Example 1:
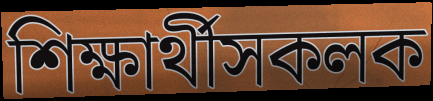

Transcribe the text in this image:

শিক্ষাৰ্থীসকলক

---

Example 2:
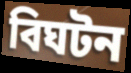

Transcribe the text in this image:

বিঘটন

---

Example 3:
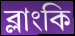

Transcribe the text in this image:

ব্লাংকি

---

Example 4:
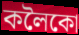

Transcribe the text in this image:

কলৈকো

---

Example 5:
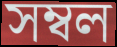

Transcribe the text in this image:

সম্বল